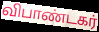
விபாண்டகர்